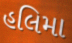
હલિમા